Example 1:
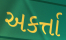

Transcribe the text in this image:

અકર્ત્તા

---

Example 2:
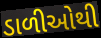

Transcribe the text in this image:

ડાળીઓથી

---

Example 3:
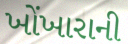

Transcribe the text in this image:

ખોંખારાની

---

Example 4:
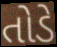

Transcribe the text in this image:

તોડે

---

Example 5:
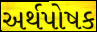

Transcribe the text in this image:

અર્થપોષક